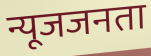
न्यूजजनता